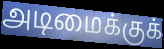
அடிமைக்குக்